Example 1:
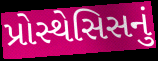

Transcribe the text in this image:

પ્રોસ્થેસિસનું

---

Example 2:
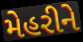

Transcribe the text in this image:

મેહરીને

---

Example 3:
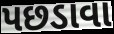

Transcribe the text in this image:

પછડાવા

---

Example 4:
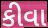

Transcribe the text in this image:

કીવા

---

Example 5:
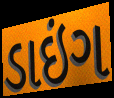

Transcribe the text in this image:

ડાઇંગ